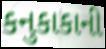
કનુકાકાની